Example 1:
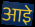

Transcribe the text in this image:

आइे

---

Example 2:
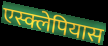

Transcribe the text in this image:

एस्क्लेपियास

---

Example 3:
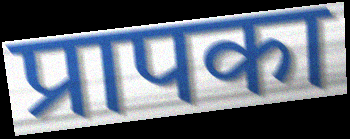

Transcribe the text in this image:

प्रापका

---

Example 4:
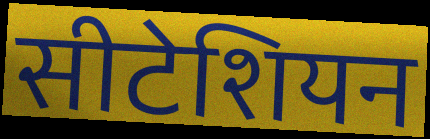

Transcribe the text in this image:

सीटेशियन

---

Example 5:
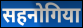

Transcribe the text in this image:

सहनोगिया